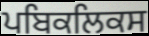
ਪਬਿਕਲਿਕਸ